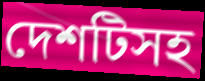
দেশটিসহ